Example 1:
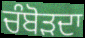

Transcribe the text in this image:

ਚੰਬੋੜਦਾ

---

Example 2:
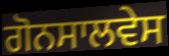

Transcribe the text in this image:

ਗੋਨਸਾਲਵੇਸ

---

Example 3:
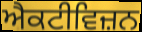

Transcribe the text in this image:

ਐਕਟੀਵਿਜ਼ਨ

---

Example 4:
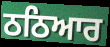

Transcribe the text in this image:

ਠਠਿਆਰ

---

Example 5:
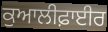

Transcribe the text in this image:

ਕੁਆਲੀਫ਼ਾਈਰ